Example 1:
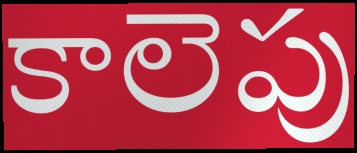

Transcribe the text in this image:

కాలెపు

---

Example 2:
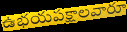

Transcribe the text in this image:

ఉభయపక్షాలవారూ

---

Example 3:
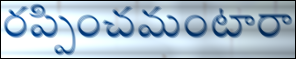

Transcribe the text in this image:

రప్పించమంటారా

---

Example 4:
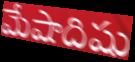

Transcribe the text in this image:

మేషాదిషు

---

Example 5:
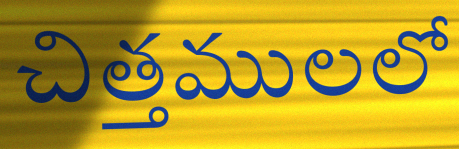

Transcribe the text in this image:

చిత్తములలో